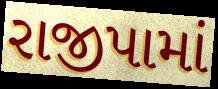
રાજીપામાં